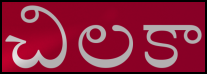
చిలకా